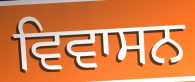
ਵਿਵਾਸਨ